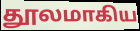
தூலமாகிய